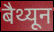
बैथ्यून